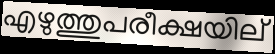
എഴുത്തുപരീക്ഷയില്